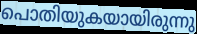
പൊതിയുകയായിരുന്നു